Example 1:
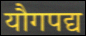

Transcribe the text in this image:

यौगपद्य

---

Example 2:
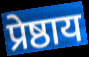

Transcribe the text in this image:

प्रेष्ठाय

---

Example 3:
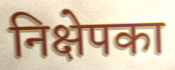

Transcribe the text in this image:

निक्षेपका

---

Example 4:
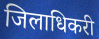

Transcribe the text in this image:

जिलाधिकरी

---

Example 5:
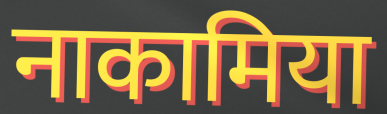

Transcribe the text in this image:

नाकामिया